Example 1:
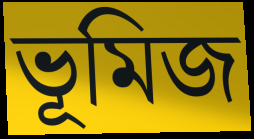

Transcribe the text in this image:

ভূমিজ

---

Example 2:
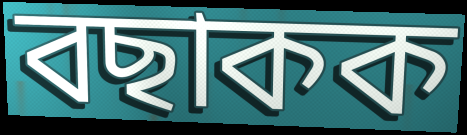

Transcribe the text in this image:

বছাকক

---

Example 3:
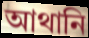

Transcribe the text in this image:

আথানি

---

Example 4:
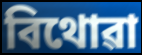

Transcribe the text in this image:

বিথোৱা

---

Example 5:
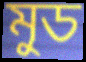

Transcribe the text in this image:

মুড